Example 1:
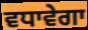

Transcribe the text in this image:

ਵਧਾਵੇਗਾ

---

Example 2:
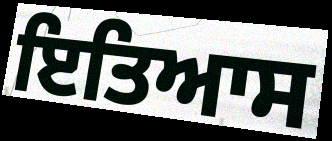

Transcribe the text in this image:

ਇਤਿਆਸ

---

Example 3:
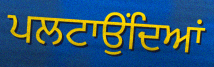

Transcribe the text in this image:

ਪਲਟਾਉਂਦਿਆਂ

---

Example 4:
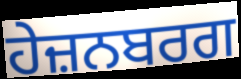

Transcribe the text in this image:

ਹੇਜ਼ਨਬਰਗ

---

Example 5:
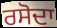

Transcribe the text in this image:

ਰਸੋਦਾ